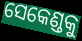
ସେକେଣ୍ଡକୁ